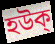
হউক্